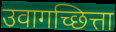
उवागच्छित्ता